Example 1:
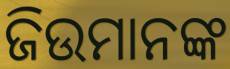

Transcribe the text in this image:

ଜିଉମାନଙ୍କ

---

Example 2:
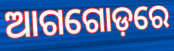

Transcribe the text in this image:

ଆଗଗୋଡ଼ରେ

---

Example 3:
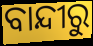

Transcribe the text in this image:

ବାନ୍ଦୀରୁ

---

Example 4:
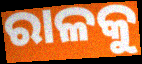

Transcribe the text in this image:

ରାଳକୁ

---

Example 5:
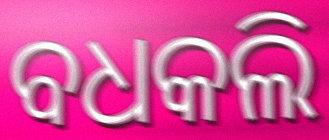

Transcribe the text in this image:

ବଧକଲି